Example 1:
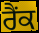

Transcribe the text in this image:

ਰੈੰਕ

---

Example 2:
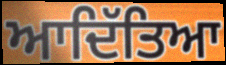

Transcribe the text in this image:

ਆਦਿੱਤਿਆ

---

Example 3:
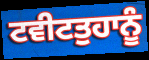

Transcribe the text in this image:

ਟਵੀਟਤੁਹਾਨੂੰ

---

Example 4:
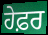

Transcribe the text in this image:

ਹੇਫ਼ਰ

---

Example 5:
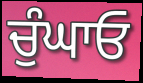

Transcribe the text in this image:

ਚੁੰਘਾਓ